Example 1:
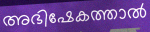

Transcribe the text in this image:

അഭിഷേകത്താൽ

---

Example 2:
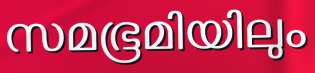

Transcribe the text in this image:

സമഭൂമിയിലും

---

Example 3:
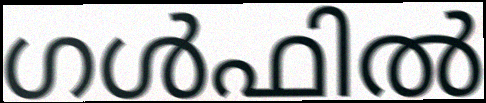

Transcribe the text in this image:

ഗൾഫിൽ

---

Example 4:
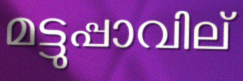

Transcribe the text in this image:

മട്ടുപ്പാവില്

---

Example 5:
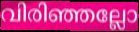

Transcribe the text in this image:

വിരിഞ്ഞല്ലോ